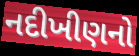
નદીખીણનો